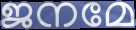
ജനമേ